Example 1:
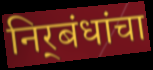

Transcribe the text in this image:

निर्बंधांचा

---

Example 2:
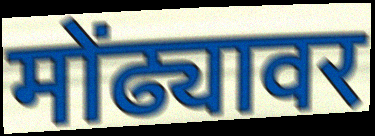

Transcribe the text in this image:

मोंढ्यावर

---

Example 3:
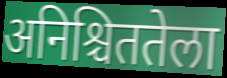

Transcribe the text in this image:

अनिश्चिततेला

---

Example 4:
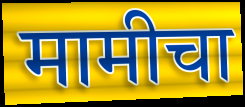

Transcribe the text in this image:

मामीचा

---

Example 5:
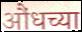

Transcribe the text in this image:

औंधच्या